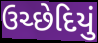
ઉચ્છેદિયું